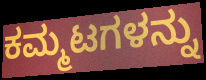
ಕಮ್ಮಟಗಳನ್ನು